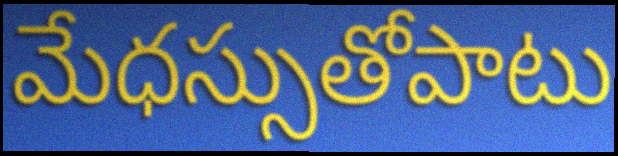
మేధస్సుతోపాటు